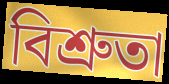
বিশ্রুতা